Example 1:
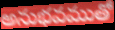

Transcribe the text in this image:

అనుభవముతో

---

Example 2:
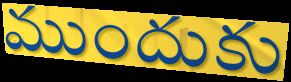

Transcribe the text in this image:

ముందుకు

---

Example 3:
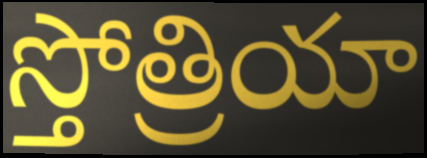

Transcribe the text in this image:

స్తోత్రియా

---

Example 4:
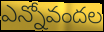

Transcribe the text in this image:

ఎన్నోవందల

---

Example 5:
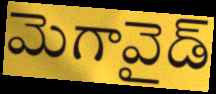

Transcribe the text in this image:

మెగావైడ్